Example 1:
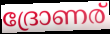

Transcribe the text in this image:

ദ്രോണര്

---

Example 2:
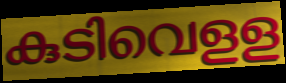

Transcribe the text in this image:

കുടിവെളള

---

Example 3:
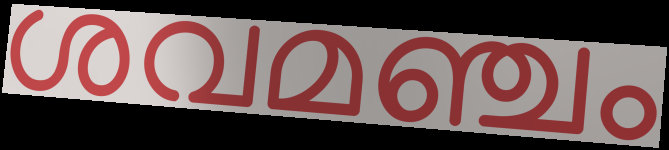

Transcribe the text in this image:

ശവമഞ്ചം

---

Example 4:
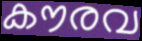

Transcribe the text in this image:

കൗരവ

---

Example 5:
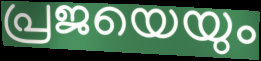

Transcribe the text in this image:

പ്രജയെയും